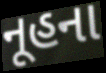
નૂહના